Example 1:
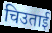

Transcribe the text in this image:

चिउताई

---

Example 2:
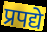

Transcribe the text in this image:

प्रपद्ये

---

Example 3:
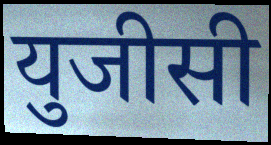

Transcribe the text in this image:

युजीसी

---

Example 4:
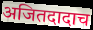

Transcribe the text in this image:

अजितदादाच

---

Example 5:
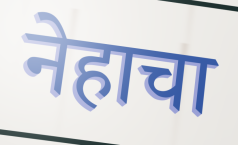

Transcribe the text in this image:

नेहाचा